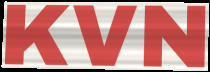
KVN